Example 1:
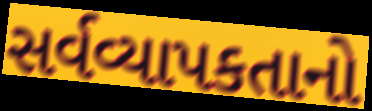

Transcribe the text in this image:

સર્વવ્યાપકતાનો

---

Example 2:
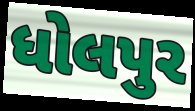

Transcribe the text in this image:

ધોલપુર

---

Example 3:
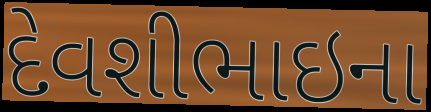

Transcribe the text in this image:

દેવશીભાઇના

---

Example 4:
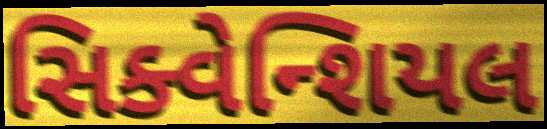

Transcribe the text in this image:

સિક્વેન્શિયલ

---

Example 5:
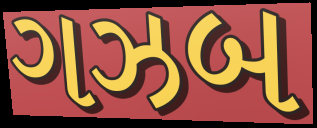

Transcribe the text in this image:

ગઝબ